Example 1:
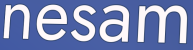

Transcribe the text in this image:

nesam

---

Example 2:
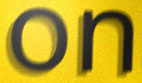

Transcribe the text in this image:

on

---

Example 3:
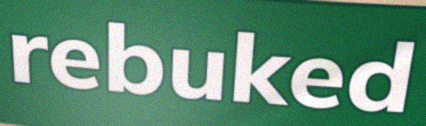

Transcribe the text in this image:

rebuked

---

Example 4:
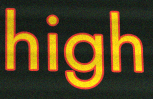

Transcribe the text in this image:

high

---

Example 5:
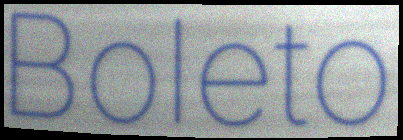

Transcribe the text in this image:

Boleto